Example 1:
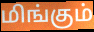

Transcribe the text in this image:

மிங்கும்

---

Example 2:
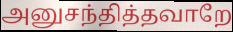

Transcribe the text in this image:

அனுசந்தித்தவாறே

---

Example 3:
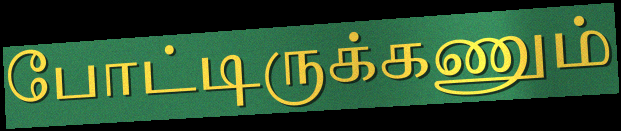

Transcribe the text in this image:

போட்டிருக்கணும்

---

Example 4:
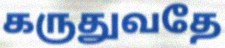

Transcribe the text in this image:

கருதுவதே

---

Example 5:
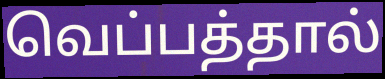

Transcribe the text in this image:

வெப்பத்தால்